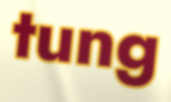
tung